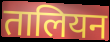
तालियन